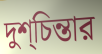
দুশ্‌চিন্তার